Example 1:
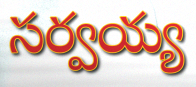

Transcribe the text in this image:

సర్వయ్య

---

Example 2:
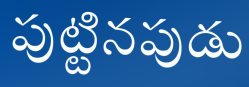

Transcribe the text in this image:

పుట్టినపుడు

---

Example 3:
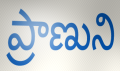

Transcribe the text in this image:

ప్రాణుని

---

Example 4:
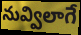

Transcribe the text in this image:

నువ్విలాగే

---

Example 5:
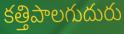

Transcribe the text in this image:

కత్తిపాలగుదురు